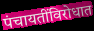
पंचायतींविरोधात